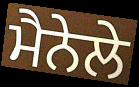
ਮੈਨੇਲੇ